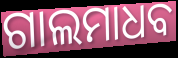
ଗାଲମାଧବ